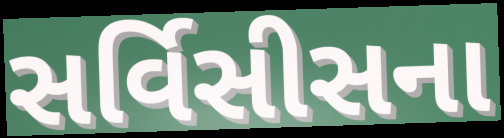
સર્વિસીસના